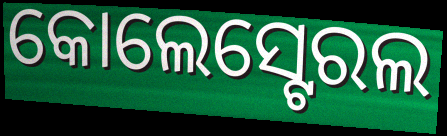
କୋଲେସ୍ଟେରଲ